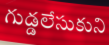
గుడ్డలేసుకుని